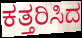
ಕತ್ತರಿಸಿದ